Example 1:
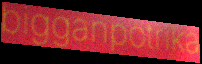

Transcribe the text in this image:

bigganpotrika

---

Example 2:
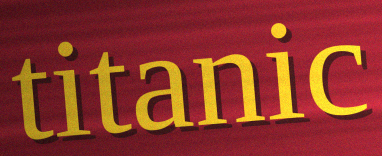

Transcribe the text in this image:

titanic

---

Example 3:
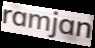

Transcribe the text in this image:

ramjan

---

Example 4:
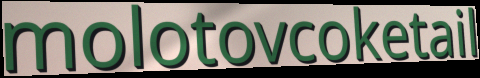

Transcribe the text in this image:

molotovcoketail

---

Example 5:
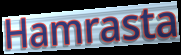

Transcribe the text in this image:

Hamrasta